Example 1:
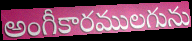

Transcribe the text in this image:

అంగీకారములగును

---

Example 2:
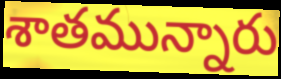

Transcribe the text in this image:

శాతమున్నారు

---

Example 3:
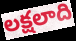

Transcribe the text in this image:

లక్షలాది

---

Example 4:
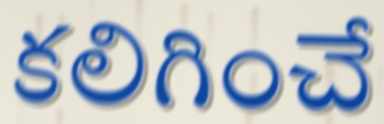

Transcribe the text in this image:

కలిగించే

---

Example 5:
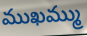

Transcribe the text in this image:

ముఖమ్ము